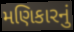
મણિકારનું